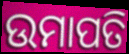
ଉମାପତି